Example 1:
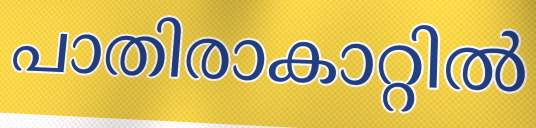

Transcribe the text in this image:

പാതിരാകാറ്റിൽ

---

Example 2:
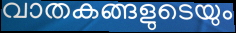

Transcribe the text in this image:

വാതകങ്ങളുടെയും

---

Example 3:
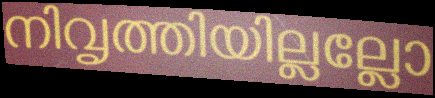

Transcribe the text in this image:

നിവൃത്തിയില്ലല്ലോ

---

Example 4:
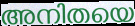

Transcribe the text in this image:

അനിതയെ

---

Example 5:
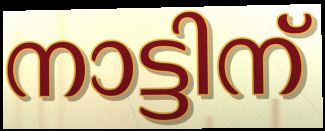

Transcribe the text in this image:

നാട്ടിന്